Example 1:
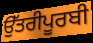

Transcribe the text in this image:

ਉੱਤਰੀਪੂਰਬੀ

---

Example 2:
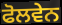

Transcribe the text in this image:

ਫੋਲਵੇਨ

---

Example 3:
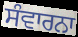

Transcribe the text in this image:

ਸੰਵਾਰਨਾ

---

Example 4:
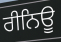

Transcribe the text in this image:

ਰੀਨਿਊ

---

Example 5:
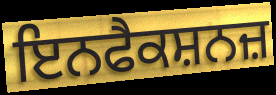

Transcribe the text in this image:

ਇਨਫੈਕਸ਼ਨਜ਼